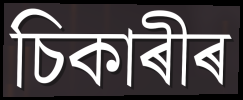
চিকাৰীৰ